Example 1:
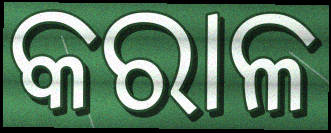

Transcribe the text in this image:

କରାଳ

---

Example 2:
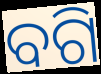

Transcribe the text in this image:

ବଗି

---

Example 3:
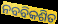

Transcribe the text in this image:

ନବବିକଶିତ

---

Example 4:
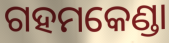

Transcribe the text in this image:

ଗହମକେଣ୍ଡା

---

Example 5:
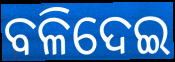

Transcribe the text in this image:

ବଳିଦେଇ